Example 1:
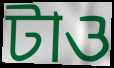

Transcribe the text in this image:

টাও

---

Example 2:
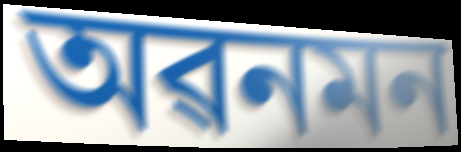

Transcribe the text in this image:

অৱনমন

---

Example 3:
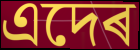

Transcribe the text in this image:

এদেৰ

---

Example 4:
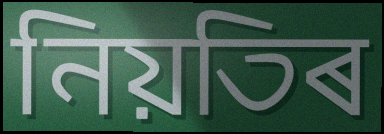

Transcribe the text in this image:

নিয়তিৰ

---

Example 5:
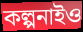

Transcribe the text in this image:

কল্পনাইও